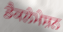
ਡੈਕਲੇਮੇਸ਼ਨ